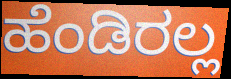
ಹೆಂಡಿರಲ್ಲ